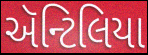
ઍન્ટિલિયા